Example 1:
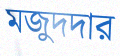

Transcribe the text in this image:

মজুদদার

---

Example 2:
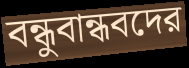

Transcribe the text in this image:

বন্ধুবান্ধবদের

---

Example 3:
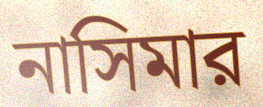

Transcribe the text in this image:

নাসিমার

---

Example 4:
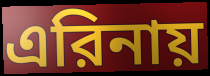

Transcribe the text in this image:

এরিনায়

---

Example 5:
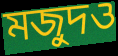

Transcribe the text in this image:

মজুদও